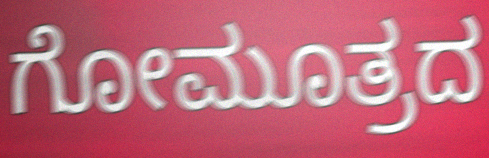
ಗೋಮೂತ್ರದ